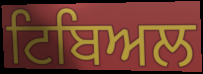
ਟਿਬਿਅਲ